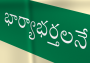
భార్యాభర్తలనే